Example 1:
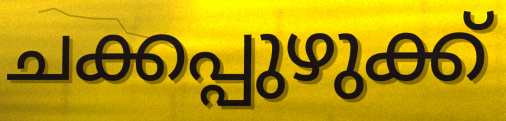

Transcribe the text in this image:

ചക്കപ്പുഴുക്ക്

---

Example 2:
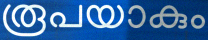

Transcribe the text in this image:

രൂപയാകും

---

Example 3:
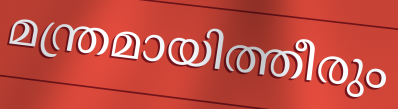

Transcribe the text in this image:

മന്ത്രമായിത്തീരും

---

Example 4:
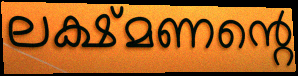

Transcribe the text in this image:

ലക്ഷ്മണന്റെ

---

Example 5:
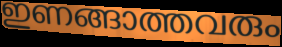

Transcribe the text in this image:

ഇണങ്ങാത്തവരും